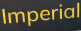
Imperial